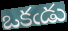
ఒకఁడు